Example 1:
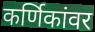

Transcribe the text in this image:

कर्णिकांवर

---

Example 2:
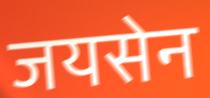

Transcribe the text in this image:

जयसेन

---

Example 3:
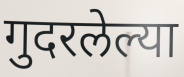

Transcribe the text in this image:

गुदरलेल्या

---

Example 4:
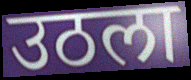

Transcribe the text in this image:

उठला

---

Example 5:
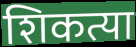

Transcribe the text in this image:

शिकत्या